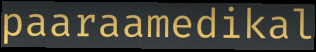
paaraamedikal